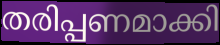
തരിപ്പണമാക്കി